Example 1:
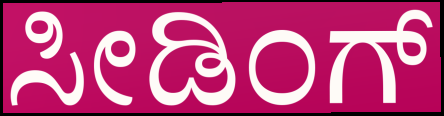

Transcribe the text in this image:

ಸೀಡಿಂಗ್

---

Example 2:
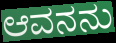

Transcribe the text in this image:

ಆವನನು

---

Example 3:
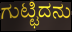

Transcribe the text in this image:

ಗುಟ್ಟಿದನು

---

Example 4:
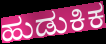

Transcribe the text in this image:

ಹುಡುಕಿಕ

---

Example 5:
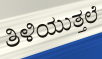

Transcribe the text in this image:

ತಿಳಿಯುತ್ತಲೆ